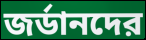
জর্ডানদের